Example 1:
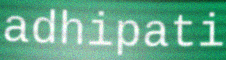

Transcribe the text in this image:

adhipati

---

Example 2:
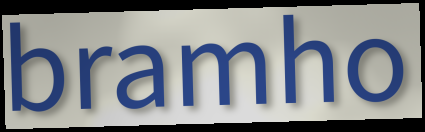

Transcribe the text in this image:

bramho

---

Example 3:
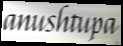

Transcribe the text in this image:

anushtupa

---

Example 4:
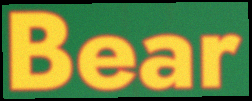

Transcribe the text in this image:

Bear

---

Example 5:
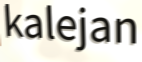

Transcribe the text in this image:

kalejan